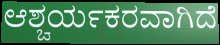
ಆಶ್ಚರ್ಯಕರವಾಗಿದೆ